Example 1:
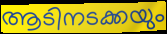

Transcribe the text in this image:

ആടിനടക്കയും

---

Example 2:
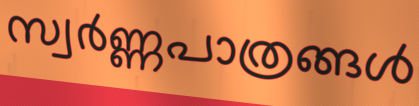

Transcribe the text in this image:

സ്വർണ്ണപാത്രങ്ങൾ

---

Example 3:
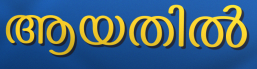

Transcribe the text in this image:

ആയതിൽ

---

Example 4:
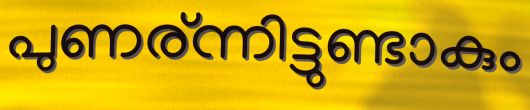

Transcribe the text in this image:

പുണര്ന്നിട്ടുണ്ടാകും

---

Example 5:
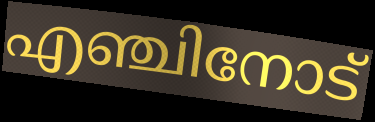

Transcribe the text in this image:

എഞ്ചിനോട്